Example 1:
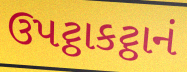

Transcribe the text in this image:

ઉપટ્ઠાકટ્ઠાનં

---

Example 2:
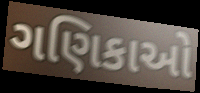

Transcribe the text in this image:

ગણિકાઓ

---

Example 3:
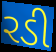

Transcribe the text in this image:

રડી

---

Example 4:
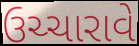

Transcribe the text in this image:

ઉચ્ચારાવે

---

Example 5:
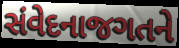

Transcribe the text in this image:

સંવેદનાજગતને